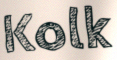
Kolk